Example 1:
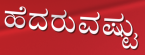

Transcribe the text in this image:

ಹೆದರುವಷ್ಟು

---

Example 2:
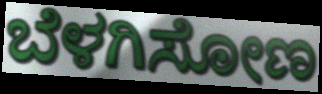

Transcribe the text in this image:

ಬೆಳಗಿಸೋಣ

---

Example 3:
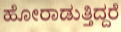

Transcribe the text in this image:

ಹೋರಾಡುತ್ತಿದ್ದರೆ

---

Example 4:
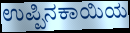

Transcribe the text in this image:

ಉಪ್ಪಿನಕಾಯಿಯ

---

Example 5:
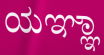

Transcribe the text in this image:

ಯಞ್ಞಾ